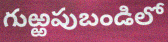
గుఱ్ఱపుబండిలో